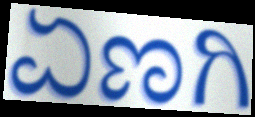
ಏಣಗಿ